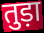
तुड़ा